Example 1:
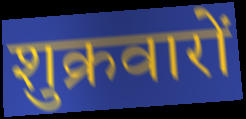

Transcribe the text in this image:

शुक्रवारों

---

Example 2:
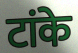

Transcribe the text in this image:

टांके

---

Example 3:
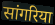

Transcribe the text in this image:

सांगरिया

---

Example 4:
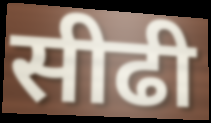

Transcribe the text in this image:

सीढी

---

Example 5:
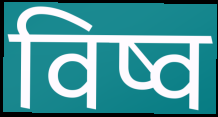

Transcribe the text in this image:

विष्व